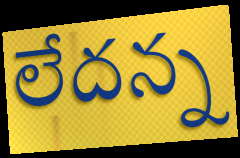
లేదన్న